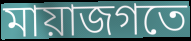
মায়াজগতে